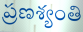
ప్రణశ్యంతి